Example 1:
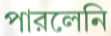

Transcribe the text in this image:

পারলেনি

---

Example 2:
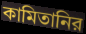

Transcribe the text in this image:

কামিতানির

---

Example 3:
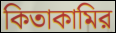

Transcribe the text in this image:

কিতাকামির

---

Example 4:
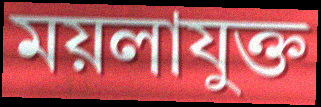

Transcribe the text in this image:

ময়লাযুক্ত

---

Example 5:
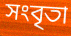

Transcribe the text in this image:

সংবৃতা